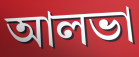
আলভা